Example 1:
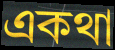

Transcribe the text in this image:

একথা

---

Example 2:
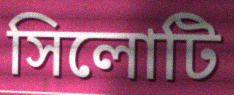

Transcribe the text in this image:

সিলোটি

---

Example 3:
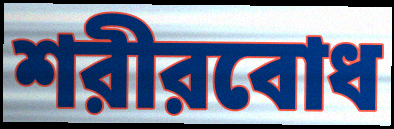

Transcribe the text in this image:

শরীরবোধ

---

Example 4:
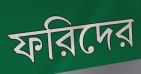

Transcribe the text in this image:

ফরিদের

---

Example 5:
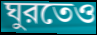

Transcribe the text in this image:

ঘুরতেও